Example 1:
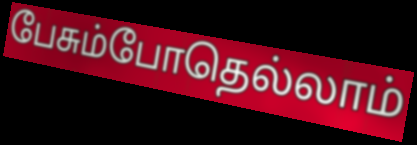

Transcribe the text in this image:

பேசும்போதெல்லாம்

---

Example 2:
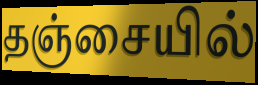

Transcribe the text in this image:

தஞ்சையில்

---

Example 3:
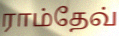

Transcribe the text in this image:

ராம்தேவ்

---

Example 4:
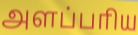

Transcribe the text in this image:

அளப்பரிய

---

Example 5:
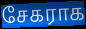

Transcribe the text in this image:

சேகராக